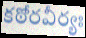
కఠోరవీర్యః